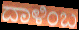
ದಾಳಿಂಬ